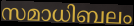
സമാധിബലം